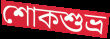
শোকশুভ্র